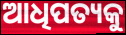
ଆଧିପତ୍ୟକୁ